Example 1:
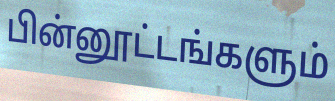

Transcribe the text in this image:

பின்னூட்டங்களும்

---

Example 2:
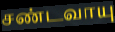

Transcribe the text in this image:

சண்டவாயு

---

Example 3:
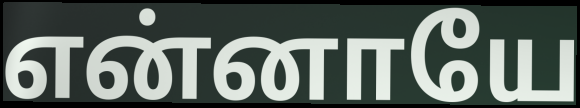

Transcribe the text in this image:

என்னாயே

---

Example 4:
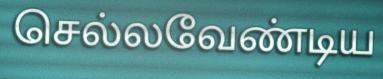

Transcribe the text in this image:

செல்லவேண்டிய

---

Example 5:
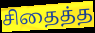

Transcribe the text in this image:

சிதைத்த